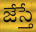
జేస్తే